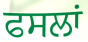
ਫਸਲਾਂ